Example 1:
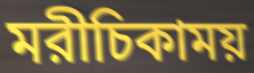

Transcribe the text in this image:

মরীচিকাময়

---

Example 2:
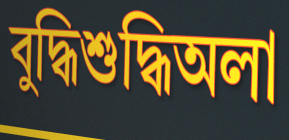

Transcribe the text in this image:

বুদ্ধিশুদ্ধিঅলা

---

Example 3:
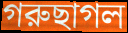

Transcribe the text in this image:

গরুছাগল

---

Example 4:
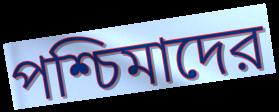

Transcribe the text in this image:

পশ্চিমাদের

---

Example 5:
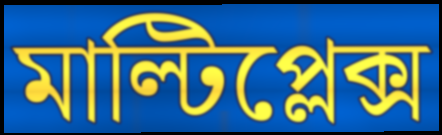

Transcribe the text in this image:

মাল্টিপ্লেক্স